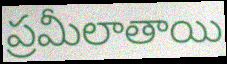
ప్రమీలాతాయి